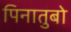
पिनातुबो